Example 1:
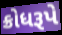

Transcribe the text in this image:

ક્રોધરૂપે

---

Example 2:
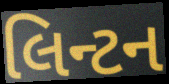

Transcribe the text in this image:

લિન્ટન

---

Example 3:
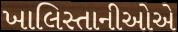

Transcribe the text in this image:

ખાલિસ્તાનીઓએ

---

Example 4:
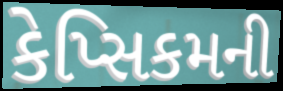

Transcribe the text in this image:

કેપ્સિકમની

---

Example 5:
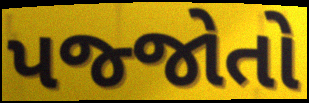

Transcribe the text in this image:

પજ્જોતો